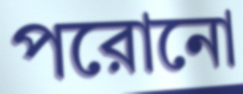
পরোনো